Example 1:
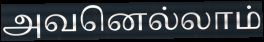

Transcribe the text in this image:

அவனெல்லாம்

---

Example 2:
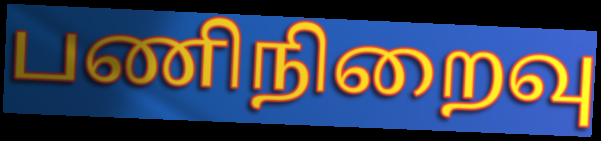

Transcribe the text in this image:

பணிநிறைவு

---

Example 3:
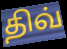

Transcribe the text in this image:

திவ்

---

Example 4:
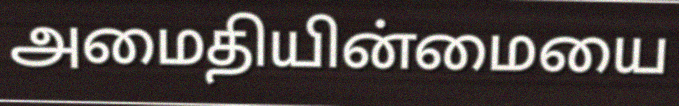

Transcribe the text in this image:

அமைதியின்மையை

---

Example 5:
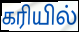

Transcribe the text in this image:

கரியில்